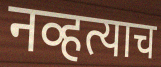
नव्हत्याच